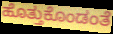
ಹೊತ್ತುಕೊಂಡಂತೆ